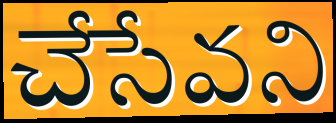
చేసేవని